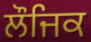
ਲੌਜਿਕ